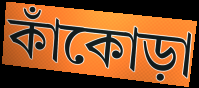
কাঁকোড়া